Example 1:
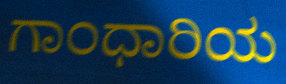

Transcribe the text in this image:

ಗಾಂಧಾರಿಯ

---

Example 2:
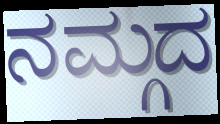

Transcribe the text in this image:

ನಮ್ಗದ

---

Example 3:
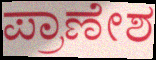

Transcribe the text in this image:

ಪ್ರಾಣೇಶ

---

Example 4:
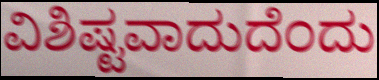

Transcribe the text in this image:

ವಿಶಿಷ್ಟವಾದುದೆಂದು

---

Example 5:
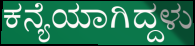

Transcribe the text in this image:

ಕನ್ಯೆಯಾಗಿದ್ದಳು